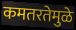
कमतरतेमुळे